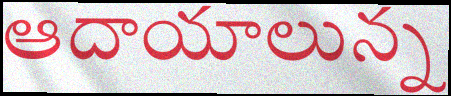
ఆదాయాలున్న